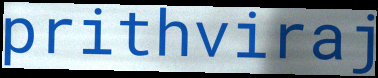
prithviraj